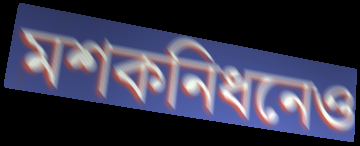
মশকনিধনেও